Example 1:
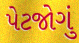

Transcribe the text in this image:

પેટજોગું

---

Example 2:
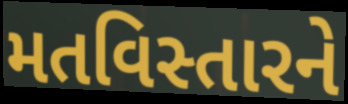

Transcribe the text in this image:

મતવિસ્તારને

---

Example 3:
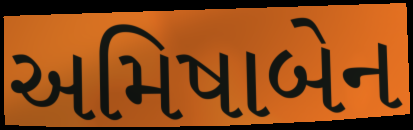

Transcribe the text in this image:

અમિષાબેન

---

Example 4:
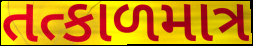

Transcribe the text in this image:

તત્કાળમાત્ર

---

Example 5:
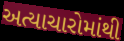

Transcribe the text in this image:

અત્યાચારોમાંથી